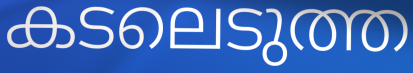
കടലെടുത്ത